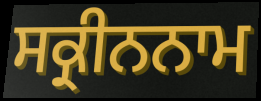
ਸਕ੍ਰੀਨਨਾਮ